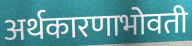
अर्थकारणाभोवती